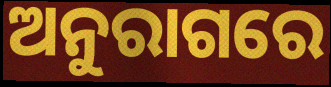
ଅନୁରାଗରେ